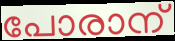
പോരാന്